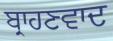
ਬ੍ਰਾਹਣਵਾਦ